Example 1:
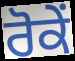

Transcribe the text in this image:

ਰੋਕੇਂ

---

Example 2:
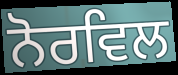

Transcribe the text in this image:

ਨੋਰਵਿਲ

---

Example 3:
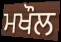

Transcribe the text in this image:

ਮਖੌਲ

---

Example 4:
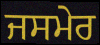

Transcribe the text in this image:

ਜਸਮੇਰ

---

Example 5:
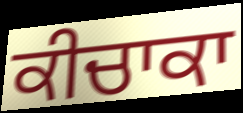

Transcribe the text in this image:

ਕੀਚਾਕਾ